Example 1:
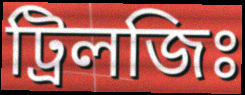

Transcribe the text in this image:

ট্রিলজিঃ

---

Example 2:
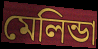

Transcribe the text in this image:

মেলিন্ডা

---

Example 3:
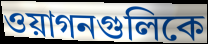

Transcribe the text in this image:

ওয়াগনগুলিকে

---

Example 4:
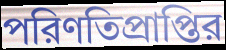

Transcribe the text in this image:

পরিণতিপ্রাপ্তির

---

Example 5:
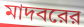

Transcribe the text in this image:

মাদবরের